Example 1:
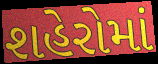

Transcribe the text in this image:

શહેરોમાં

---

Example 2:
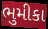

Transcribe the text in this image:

ભુમીકા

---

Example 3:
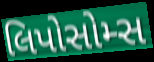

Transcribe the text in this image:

લિપોસોમ્સ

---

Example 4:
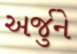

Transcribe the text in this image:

અર્જુને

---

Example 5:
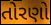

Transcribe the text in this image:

તોરણો